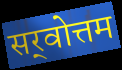
सर्वोत्तम